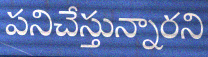
పనిచేస్తున్నారని